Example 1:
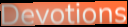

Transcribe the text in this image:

Devotions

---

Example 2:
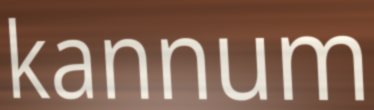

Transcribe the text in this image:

kannum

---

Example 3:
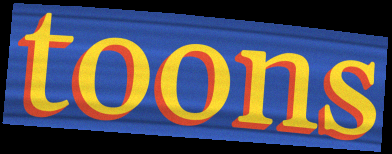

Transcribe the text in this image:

toons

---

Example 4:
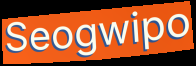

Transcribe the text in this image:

Seogwipo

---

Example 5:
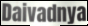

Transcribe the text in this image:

Daivadnya